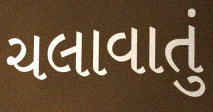
ચલાવાતું